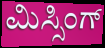
ಮಿಸ್ಸಿಂಗ್